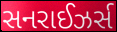
સનરાઈઝર્સ